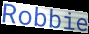
Robbie